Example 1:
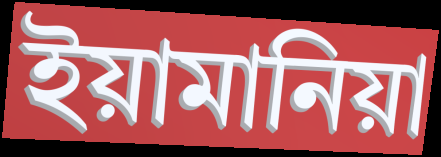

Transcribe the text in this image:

ইয়ামানিয়া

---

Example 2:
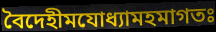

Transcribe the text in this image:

বৈদেহীমযোধ্যামহমাগতঃ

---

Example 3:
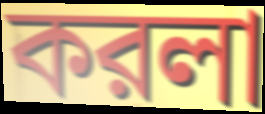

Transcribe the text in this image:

করলা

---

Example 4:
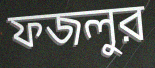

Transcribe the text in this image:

ফজলুর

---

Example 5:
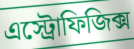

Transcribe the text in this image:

এস্ট্রোফিজিক্স